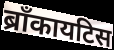
ब्राँकायटिस